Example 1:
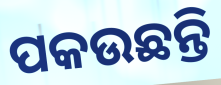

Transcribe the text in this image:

ପକଉଛନ୍ତି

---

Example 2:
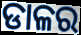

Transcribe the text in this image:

ଡାଳର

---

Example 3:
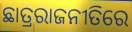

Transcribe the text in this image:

ଛାତ୍ରରାଜନୀତିରେ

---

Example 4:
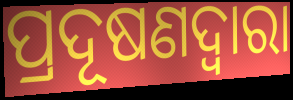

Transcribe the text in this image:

ପ୍ରଦୂଷଣଦ୍ବାରା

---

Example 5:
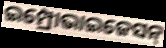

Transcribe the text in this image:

ଇମ୍ପ୍ରୋଭାଇଜେସନ୍